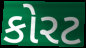
કોરટ